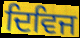
ਦਿਵਿਜ